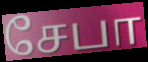
சேபா